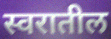
स्वरातील